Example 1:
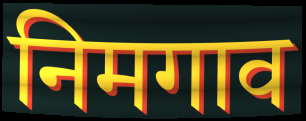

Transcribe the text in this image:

निमगाव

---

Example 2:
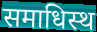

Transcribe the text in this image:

समाधिस्थ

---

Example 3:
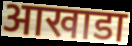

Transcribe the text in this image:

आखाडा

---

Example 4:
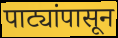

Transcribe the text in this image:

पाट्यांपासून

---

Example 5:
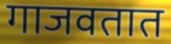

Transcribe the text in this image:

गाजवतात